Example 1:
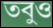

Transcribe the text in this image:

তবুও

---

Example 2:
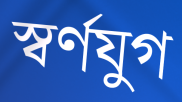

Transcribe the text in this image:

স্বর্ণযুগ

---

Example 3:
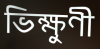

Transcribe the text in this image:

ভিক্ষুণী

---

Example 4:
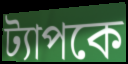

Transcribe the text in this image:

ট্যাপকে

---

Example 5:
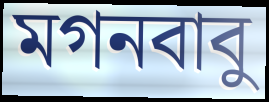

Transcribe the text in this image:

মগনবাবু